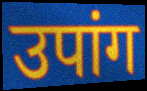
उपांग